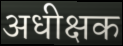
अधीक्षक